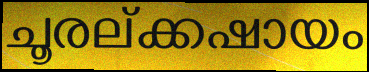
ചൂരല്ക്കഷായം